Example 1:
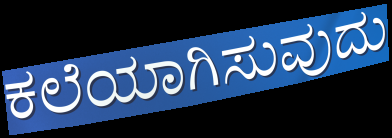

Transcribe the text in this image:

ಕಲೆಯಾಗಿಸುವುದು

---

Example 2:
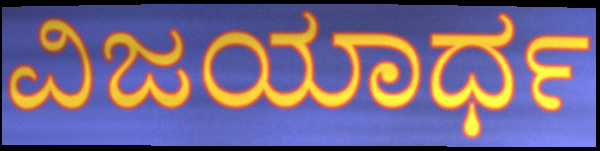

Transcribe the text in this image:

ವಿಜಯಾರ್ಧ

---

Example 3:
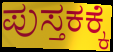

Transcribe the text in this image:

ಪುಸ್ತಕಕ್ಕೆ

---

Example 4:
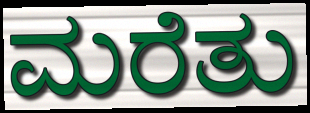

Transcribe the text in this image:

ಮರೆತು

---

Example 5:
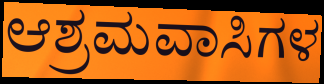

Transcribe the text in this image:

ಆಶ್ರಮವಾಸಿಗಳ